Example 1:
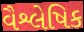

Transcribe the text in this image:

વૈશ્લેષિક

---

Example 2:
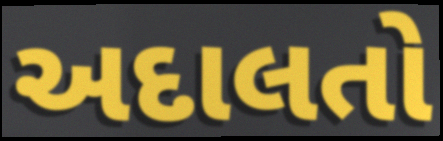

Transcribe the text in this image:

અદાલતો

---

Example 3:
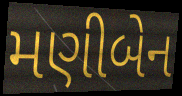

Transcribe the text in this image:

મણીબેન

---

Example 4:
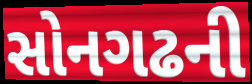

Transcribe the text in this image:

સોનગઢની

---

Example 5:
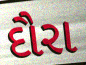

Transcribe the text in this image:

દૌરા